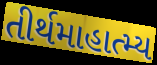
તીર્થમાહાત્મ્ય